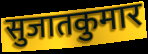
सुजातकुमार